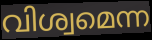
വിശ്വമെന്ന